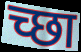
च्छा